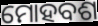
ମୋହବଶ